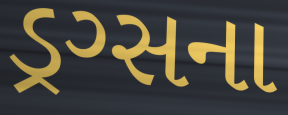
ડ્રગ્સના